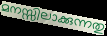
മനസ്സിലാക്കുന്നതു